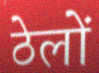
ठेलों